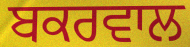
ਬਕਰਵਾਲ